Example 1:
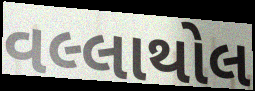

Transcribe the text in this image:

વલ્લાથોલ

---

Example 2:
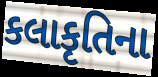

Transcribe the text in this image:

કલાકૃતિના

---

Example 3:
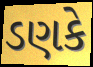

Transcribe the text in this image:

ડણકે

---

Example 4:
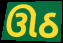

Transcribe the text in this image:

ઊઠ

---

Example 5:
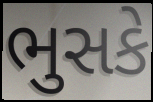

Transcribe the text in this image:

ભુસકે